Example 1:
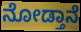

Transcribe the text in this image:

ನೋಡ್ತಾನೆ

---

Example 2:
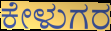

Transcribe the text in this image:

ಕೇಳುಗರ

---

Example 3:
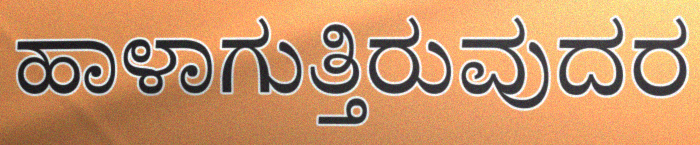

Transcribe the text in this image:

ಹಾಳಾಗುತ್ತಿರುವುದರ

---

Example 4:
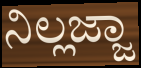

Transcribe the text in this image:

ನಿಲ್ಲಜ್ಜಾ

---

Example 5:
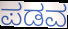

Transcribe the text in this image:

ಪಡವ